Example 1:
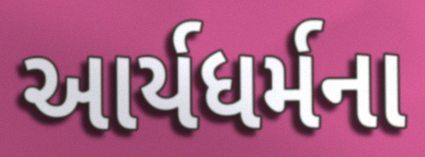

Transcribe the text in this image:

આર્યધર્મના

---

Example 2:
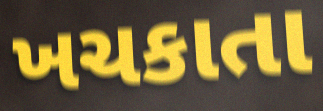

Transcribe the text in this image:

ખચકાતા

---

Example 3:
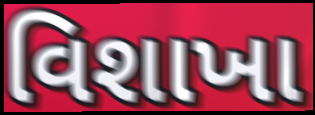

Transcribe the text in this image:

વિશાખા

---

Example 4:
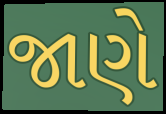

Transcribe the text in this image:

જાણે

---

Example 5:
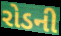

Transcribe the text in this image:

રોડની